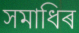
সমাধিৰ